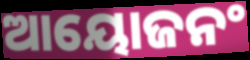
ଆୟୋଜନଂ